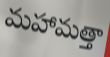
మహామత్తా